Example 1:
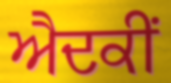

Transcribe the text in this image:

ਐਦਕੀਂ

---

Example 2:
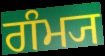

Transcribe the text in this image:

ਗੰਮ੍ਯ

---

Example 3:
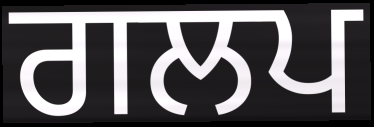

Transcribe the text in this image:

ਗਲਪ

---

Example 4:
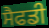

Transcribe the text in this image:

ਸੈਫਡੀ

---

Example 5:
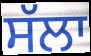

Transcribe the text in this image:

ਸੱਲਾ